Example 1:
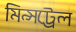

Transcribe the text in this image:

মিন্সট্রেল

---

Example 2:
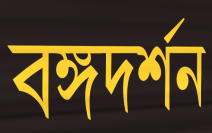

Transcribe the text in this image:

বঙ্গদর্শন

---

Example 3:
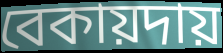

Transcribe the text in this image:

বেকায়দায়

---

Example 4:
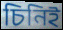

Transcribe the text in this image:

চিনিই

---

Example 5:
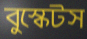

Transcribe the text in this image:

বুস্কেটস